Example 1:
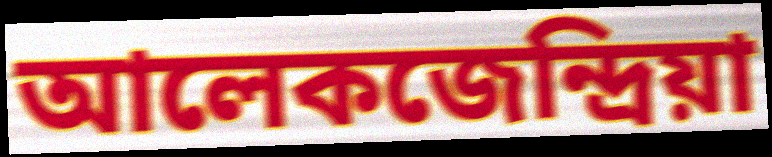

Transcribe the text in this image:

আলেকজেন্দ্ৰিয়া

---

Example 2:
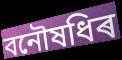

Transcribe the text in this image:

বনৌষধিৰ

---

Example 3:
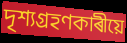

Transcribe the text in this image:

দৃশ্যগ্ৰহণকাৰীয়ে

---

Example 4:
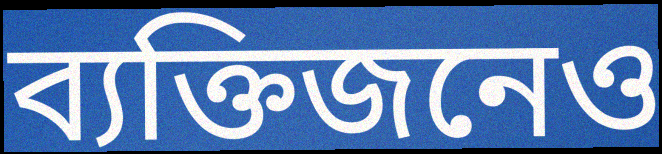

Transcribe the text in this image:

ব্যক্তিজনেও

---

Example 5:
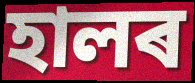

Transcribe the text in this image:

হালৰ